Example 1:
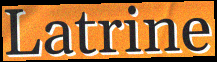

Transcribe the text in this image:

Latrine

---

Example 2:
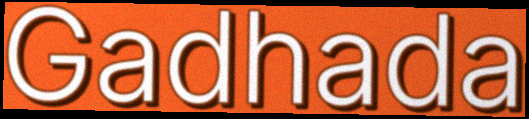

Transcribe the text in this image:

Gadhada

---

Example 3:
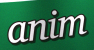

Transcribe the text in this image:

anim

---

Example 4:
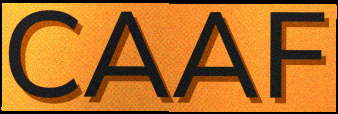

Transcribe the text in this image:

CAAF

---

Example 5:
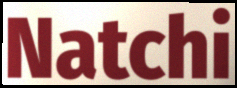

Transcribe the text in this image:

Natchi